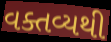
વક્તવ્યથી